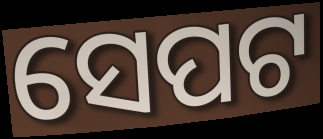
ସେପଟ